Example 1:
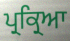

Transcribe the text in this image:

ਪ੍ਰਕ੍ਰਿਆ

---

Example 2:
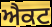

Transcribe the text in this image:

ਐਕਟ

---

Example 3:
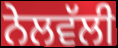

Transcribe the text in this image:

ਨੇਲਵੱਲੀ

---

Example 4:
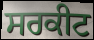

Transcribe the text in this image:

ਸਰਕੀਟ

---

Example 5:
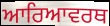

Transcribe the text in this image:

ਆਰਿਆਵਰਥ